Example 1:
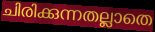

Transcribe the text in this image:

ചിരിക്കുന്നതല്ലാതെ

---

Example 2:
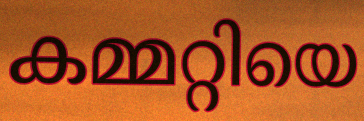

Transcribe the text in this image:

കമ്മറ്റിയെ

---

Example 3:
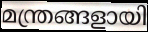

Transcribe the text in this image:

മന്ത്രങ്ങളായി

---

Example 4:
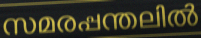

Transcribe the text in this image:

സമരപ്പന്തലിൽ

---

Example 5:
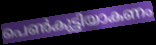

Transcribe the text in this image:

പെൺകുട്ടിയാകണം